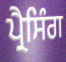
ਪ੍ਰੈਸਿੰਗ